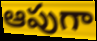
ఆపుగా